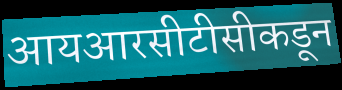
आयआरसीटीसीकडून